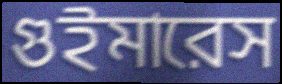
গুইমারেস